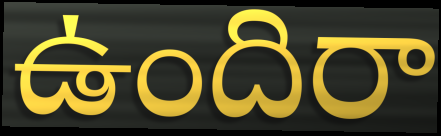
ఉందిరా